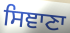
ਸਿਞਾਣਾ